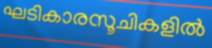
ഘടികാരസൂചികളിൽ